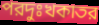
পরদুঃখকাতর